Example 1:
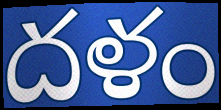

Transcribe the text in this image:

దళం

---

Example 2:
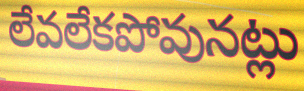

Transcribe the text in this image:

లేవలేకపోవునట్లు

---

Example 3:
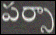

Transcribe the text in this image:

పర్సా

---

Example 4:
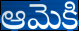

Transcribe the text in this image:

ఆమెకి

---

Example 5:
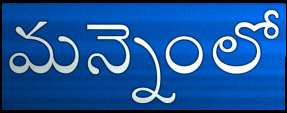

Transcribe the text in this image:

మన్నెంలో